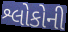
શ્લોકોની